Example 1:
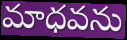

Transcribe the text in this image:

మాధవను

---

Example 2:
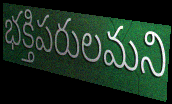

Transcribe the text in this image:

భక్తిపరులమని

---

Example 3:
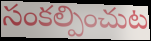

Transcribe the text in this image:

సంకల్పించుట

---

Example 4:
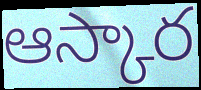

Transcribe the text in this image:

ఆస్కార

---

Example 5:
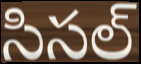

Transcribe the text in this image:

సిసల్